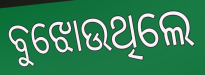
ବୁଝୋଉଥିଲେ